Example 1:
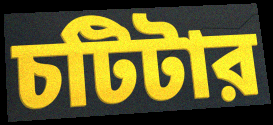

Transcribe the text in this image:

চটিটার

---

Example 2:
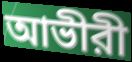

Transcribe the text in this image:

আভীরী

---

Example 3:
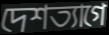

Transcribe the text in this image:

দেশত্যাগে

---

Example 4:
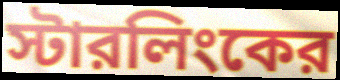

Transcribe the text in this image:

স্টারলিংকের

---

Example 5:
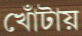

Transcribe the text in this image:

খোঁটায়